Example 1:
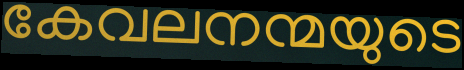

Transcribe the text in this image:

കേവലനന്മയുടെ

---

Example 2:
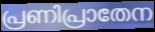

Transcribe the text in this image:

പ്രണിപ്രാതേന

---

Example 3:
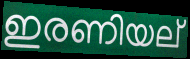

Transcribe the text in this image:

ഇരണിയല്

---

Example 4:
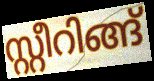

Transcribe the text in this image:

സ്റ്റീറിങ്ങ്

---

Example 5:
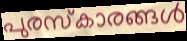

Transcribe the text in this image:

പുരസ്കാരങ്ങൾ